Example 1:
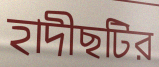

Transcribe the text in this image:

হাদীছটির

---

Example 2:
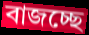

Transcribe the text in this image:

বাজচ্ছে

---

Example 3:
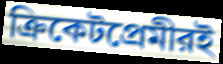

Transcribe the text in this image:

ক্রিকেটপ্রেমীরই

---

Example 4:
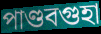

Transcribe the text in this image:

পাণ্ডবগুহা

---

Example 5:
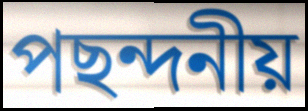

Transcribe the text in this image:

পছন্দনীয়